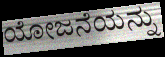
ಯೋಜನೆಯನ್ನು